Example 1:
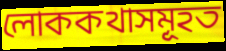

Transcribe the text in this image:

লোককথাসমূহত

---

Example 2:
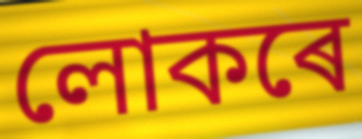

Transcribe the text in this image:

লোকৰে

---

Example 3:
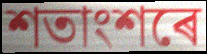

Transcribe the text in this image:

শতাংশৰে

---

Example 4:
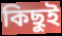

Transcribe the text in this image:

কিছুই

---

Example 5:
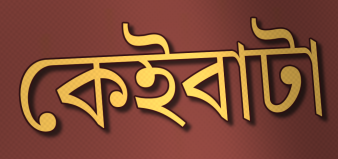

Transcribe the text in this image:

কেইবাটা